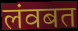
लंवबत